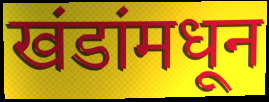
खंडांमधून